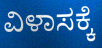
ವಿಳಾಸಕ್ಕೆ